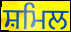
ਸ਼ਮਿਲ